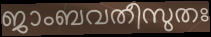
ജാംബവതീസുതഃ